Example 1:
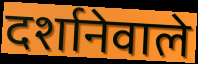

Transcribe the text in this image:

दर्शानेवाले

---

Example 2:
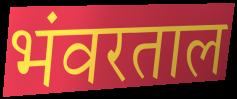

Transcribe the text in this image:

भंवरताल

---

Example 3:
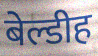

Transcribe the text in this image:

बेल्डीह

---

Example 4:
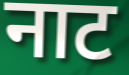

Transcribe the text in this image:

नाट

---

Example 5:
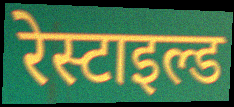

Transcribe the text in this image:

रेस्टाइल्ड